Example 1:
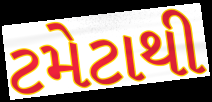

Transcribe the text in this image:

ટમેટાથી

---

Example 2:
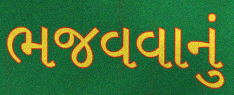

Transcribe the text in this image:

ભજવવાનું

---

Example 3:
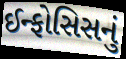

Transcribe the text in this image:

ઈન્ફોસિસનું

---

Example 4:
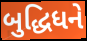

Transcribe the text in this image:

બુદ્ધિધને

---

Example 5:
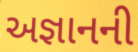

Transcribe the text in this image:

અજ્ઞાનની